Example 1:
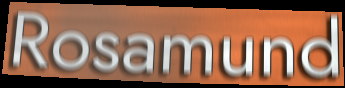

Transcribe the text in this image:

Rosamund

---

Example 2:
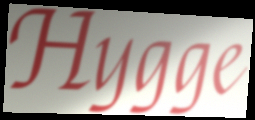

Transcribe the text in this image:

Hygge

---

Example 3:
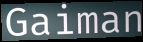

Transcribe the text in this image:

Gaiman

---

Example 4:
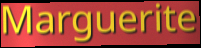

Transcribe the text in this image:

Marguerite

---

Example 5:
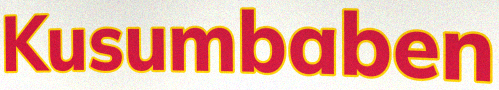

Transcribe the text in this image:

Kusumbaben